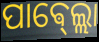
ପାଵ୍ଲ୍ଲୋ